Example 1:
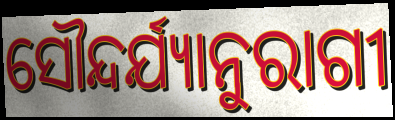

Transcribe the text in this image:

ସୌନ୍ଦର୍ଯ୍ୟାନୁରାଗୀ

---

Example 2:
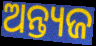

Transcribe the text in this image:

ଅନ୍ତ୍ୟଜ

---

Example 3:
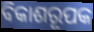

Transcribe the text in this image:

ବିକାଶରୂପକ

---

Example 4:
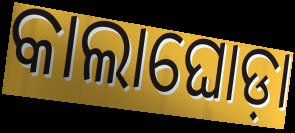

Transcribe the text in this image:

କାଲାଘୋଡ଼ା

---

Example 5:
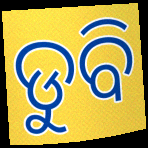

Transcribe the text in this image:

ଡୁବି